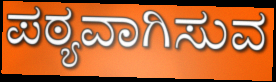
ಪಠ್ಯವಾಗಿಸುವ